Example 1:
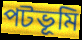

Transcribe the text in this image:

পটভূমি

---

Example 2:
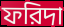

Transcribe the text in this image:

ফরিদা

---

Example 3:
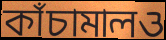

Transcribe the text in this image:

কাঁচামালও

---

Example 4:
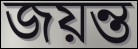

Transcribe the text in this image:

জয়ন্ত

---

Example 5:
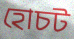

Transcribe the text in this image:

হোচট